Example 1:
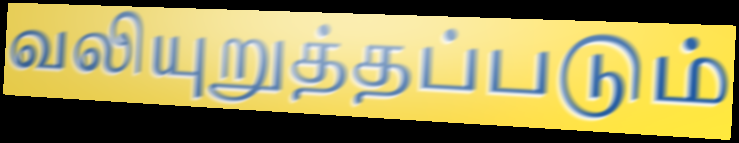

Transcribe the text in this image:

வலியுறுத்தப்படும்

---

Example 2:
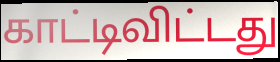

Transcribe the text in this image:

காட்டிவிட்டது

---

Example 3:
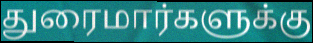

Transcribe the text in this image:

துரைமார்களுக்கு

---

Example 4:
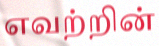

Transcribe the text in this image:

எவற்றின்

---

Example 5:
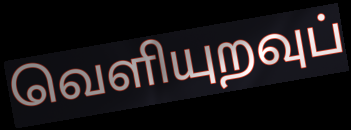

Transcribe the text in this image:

வெளியுறவுப்